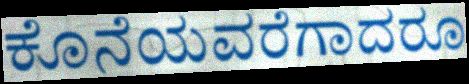
ಕೊನೆಯವರೆಗಾದರೂ